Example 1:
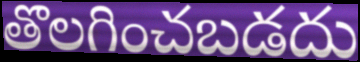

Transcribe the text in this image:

తొలగించబడదు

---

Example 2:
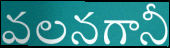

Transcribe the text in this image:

వలనగానీ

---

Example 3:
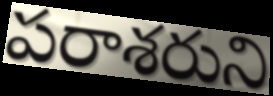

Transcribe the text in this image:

పరాశరుని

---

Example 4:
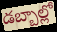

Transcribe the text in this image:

డబ్బాల్లో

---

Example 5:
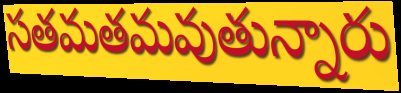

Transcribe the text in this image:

సతమతమవుతున్నారు